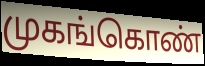
முகங்கொண்